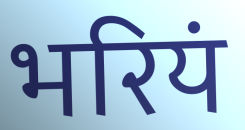
भरियं